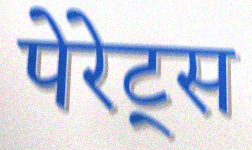
पेरेट्स